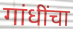
गांधींचा